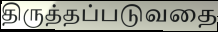
திருத்தப்படுவதை